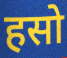
हसो